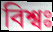
বিশ্বঃ